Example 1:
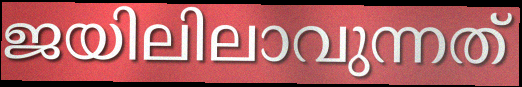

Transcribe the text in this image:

ജയിലിലാവുന്നത്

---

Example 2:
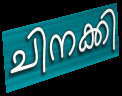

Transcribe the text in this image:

ചിനക്കി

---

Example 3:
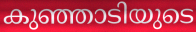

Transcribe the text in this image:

കുഞ്ഞാടിയുടെ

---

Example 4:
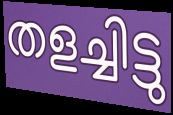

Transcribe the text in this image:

തളച്ചിട്ടു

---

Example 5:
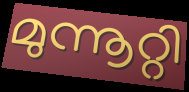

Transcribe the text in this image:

മുന്നൂറ്റി